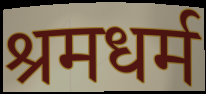
श्रमधर्म